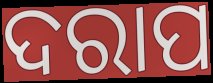
ଦରାପ